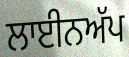
ਲਾਈਨਅੱਪ